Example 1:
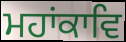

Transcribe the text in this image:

ਮਹਾਂਕਾਵਿ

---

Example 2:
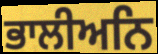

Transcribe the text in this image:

ਭਾਲੀਅਨਿ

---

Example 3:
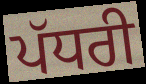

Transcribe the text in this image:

ਪੱਧਰੀ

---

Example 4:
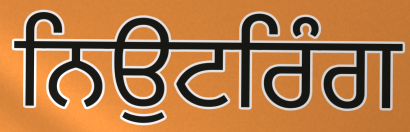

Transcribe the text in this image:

ਨਿਉਟਰਿੰਗ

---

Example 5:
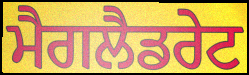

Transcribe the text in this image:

ਮੈਗਲੈਡਰੇਟ